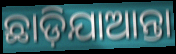
ଛାଡ଼ିଯାଆନ୍ତା